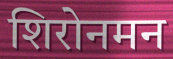
शिरोनमन